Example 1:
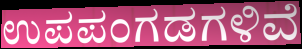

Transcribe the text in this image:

ಉಪಪಂಗಡಗಳಿವೆ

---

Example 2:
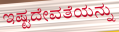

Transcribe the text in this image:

ಇಷ್ಟದೇವತೆಯನ್ನು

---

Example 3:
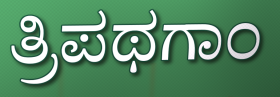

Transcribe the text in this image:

ತ್ರಿಪಥಗಾಂ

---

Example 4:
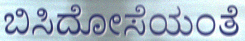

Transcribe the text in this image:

ಬಿಸಿದೋಸೆಯಂತೆ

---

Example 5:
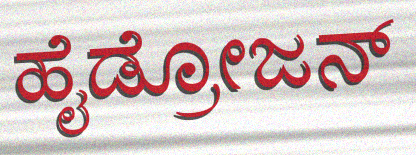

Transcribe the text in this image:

ಹೈಡ್ರೋಜನ್